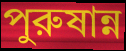
পুরুষান্ন